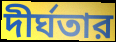
দীর্ঘতার